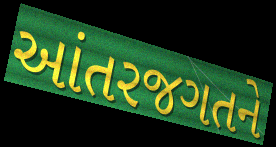
આંતરજગતને